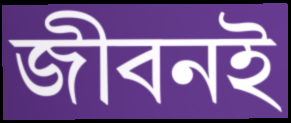
জীবনই